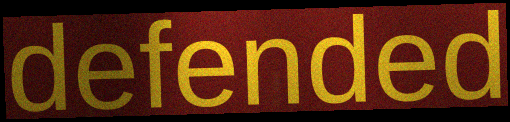
defended